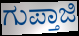
ಗುಪ್ತಾಜಿ